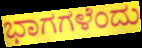
ಭಾಗಗಳೆಂದು